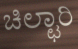
ಚಿಲ್ಟಾರಿ